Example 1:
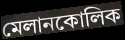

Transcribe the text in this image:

মেলানকোলিক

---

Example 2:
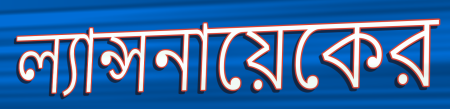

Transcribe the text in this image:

ল্যান্সনায়েকের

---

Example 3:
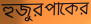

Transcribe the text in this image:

হুজুরপাকের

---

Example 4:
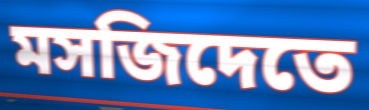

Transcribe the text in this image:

মসজিদেতে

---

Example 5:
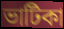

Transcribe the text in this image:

ভাটিকা